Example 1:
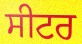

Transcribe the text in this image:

ਸੀਟਰ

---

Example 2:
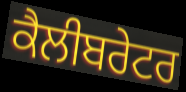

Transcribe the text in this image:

ਕੈਲੀਬਰੇਟਰ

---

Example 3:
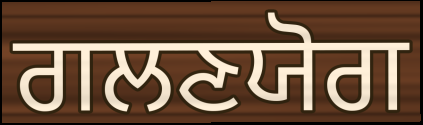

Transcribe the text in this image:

ਗਲਣਯੋਗ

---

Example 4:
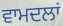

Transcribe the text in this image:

ਵਾਮਦਲਾਂ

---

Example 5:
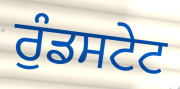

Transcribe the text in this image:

ਰੁੰਡਸਟੇਟ